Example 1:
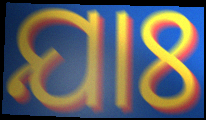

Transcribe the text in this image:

ଯାଃ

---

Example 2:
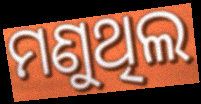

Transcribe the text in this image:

ମଣୁଥିଲ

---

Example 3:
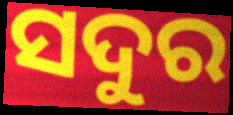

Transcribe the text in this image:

ସଦୁର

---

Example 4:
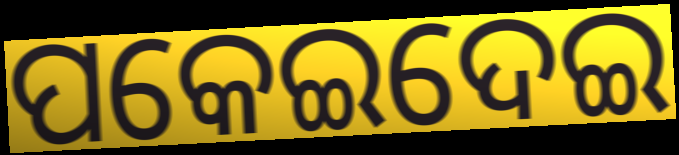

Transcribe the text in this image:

ପକେଇଦେଇ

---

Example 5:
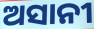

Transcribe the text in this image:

ଅସାନୀ